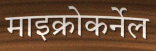
माइक्रोकर्नेल